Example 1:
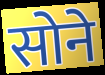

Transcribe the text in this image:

सोने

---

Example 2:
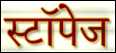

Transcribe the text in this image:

स्टॉपेज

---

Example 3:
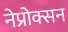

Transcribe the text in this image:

नेप्रोक्सन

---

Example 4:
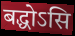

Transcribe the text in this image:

बद्धोऽसि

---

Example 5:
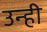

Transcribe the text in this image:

उन्ही